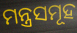
ମନ୍ତ୍ରସମୂହ